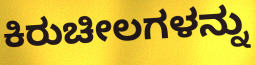
ಕಿರುಚೀಲಗಳನ್ನು